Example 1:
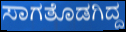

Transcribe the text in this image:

ಸಾಗತೊಡಗಿದ್ದ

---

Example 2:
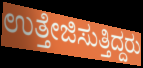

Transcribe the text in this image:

ಉತ್ತೇಜಿಸುತ್ತಿದ್ದರು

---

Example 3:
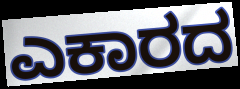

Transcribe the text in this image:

ಎಕಾರದ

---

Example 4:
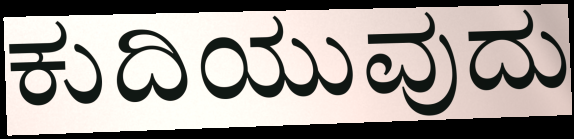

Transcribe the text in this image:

ಕುದಿಯುವುದು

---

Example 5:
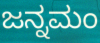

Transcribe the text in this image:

ಜನ್ನಮಂ